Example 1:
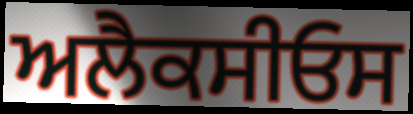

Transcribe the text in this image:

ਅਲੈਕਸੀਓਸ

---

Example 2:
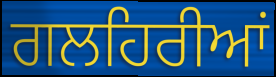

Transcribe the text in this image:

ਗਲਹਿਰੀਆਂ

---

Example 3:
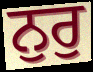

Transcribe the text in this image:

ਨੁਰੁ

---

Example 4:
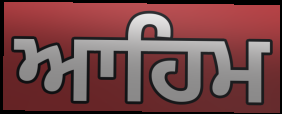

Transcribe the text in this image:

ਆਹਿਮ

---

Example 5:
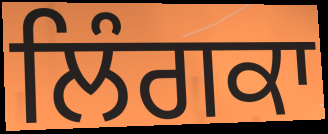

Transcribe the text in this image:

ਲਿੰਗਕਾ